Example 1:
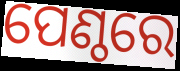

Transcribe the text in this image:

ପେଣ୍ଠରେ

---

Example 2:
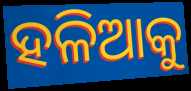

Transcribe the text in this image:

ହଳିଆକୁ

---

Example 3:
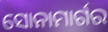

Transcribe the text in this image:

ସୋନାମାର୍ଗର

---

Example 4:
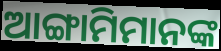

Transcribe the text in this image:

ଆଙ୍ଗାମିମାନଙ୍କ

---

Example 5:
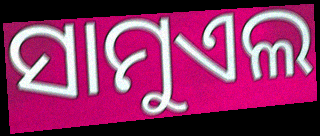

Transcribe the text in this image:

ସାମୁଏଲ